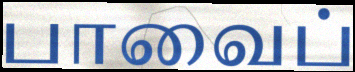
பாவைப்